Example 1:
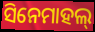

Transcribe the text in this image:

ସିନେମାହଲ୍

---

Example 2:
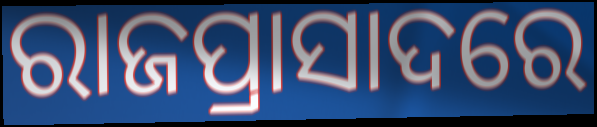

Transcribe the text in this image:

ରାଜପ୍ରାସାଦରେ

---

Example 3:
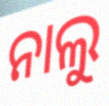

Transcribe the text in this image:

ନାଲୁ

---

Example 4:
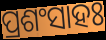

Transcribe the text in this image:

ପ୍ରଶଂସାହଃ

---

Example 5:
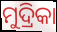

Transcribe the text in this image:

ମୁଦ୍ରିକା